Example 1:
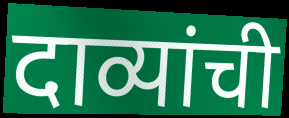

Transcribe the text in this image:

दाव्यांची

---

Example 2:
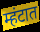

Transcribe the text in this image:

म्हंटात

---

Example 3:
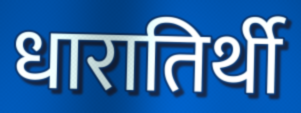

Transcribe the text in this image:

धारातिर्थी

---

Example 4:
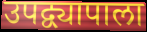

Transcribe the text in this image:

उपद्व्यापाला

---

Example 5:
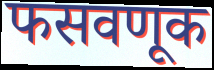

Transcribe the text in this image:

फसवणूक